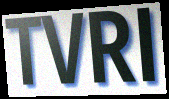
TVRI